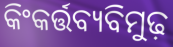
କିଂକର୍ତ୍ତବ୍ୟବିମୁଢ଼